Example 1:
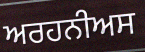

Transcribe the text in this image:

ਅਰਹਨੀਅਸ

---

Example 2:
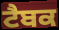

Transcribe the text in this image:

ਟੈਬਕ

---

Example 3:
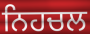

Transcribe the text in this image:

ਨਿਹਚਲ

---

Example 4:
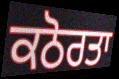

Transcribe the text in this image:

ਕਠੋਰਤਾ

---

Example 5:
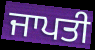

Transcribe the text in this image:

ਜਾਪਤੀ